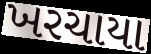
ખરચાયા